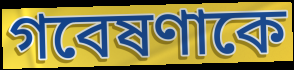
গবেষণাকে